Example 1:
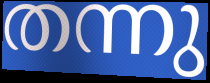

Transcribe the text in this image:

തന്നു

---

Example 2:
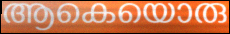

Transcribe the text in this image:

ആകെയൊരു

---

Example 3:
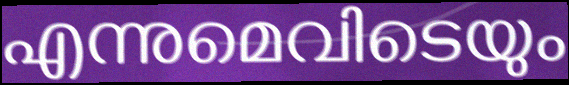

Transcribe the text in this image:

എന്നുമെവിടെയും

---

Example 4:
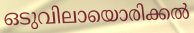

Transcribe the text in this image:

ഒടുവിലായൊരിക്കൽ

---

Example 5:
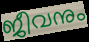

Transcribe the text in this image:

ജീവനും